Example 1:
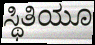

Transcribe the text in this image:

ಸ್ಥಿತಿಯೂ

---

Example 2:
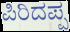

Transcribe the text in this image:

ಪಿರಿದಪ್ಪ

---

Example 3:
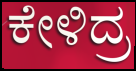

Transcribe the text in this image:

ಕೇಳಿದ್ರ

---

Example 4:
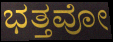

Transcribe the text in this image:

ಭತ್ತವೋ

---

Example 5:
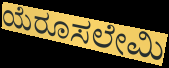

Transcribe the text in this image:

ಯೆರೂಸಲೇಮಿ